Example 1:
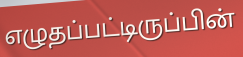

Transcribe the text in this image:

எழுதப்பட்டிருப்பின்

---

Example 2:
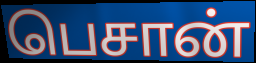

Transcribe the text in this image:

பெசான்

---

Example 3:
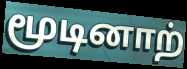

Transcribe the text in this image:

மூடினாற்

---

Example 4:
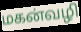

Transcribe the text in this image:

மகன்வழி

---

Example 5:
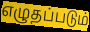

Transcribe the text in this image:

எழுதப்படும்